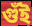
গুঁই